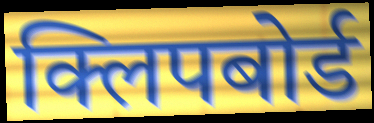
क्लिपबोर्ड